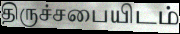
திருச்சபையிடம்